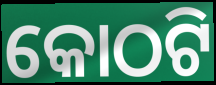
କୋଠଟି